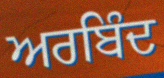
ਅਰਬਿੰਦ